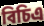
বিচিএ